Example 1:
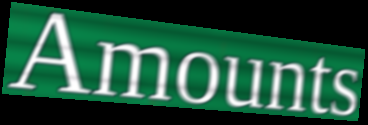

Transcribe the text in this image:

Amounts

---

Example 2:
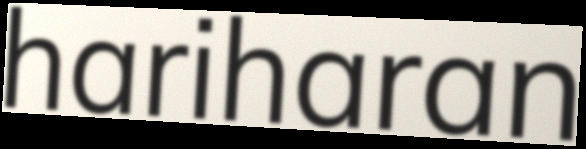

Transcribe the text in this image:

hariharan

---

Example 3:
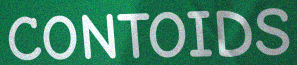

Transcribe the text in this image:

CONTOIDS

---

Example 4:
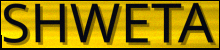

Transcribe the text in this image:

SHWETA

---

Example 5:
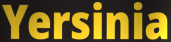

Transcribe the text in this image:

Yersinia